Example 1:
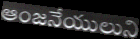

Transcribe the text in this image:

ఆంజనేయులుని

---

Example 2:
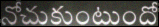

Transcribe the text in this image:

నోచుకుంటుందో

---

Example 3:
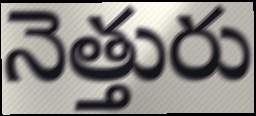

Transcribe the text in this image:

నెత్తురు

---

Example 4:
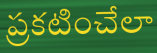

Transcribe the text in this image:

ప్రకటించేలా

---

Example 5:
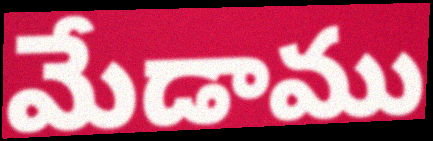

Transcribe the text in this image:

మేడాము